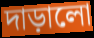
দাড়ালো